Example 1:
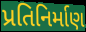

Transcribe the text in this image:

પ્રતિનિર્માણ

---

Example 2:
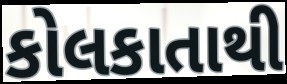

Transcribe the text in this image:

કોલકાતાથી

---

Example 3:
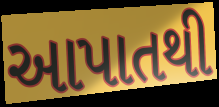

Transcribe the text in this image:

આપાતથી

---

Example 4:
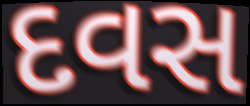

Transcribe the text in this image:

દવસ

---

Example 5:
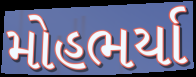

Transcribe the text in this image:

મોહભર્યા